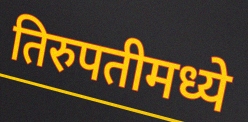
तिरुपतीमध्ये